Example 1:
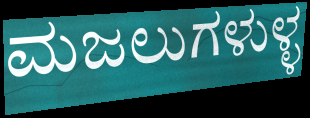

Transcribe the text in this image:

ಮಜಲುಗಳುಳ್ಳ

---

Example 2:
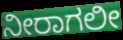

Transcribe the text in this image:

ನೀರಾಗಲೀ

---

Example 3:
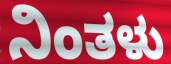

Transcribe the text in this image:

ನಿಂತಳು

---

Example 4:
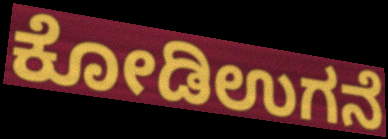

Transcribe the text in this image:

ಕೋಡಿಉಗನೆ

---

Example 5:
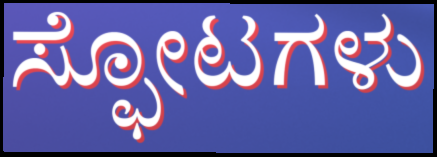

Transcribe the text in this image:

ಸ್ಫೋಟಗಳು